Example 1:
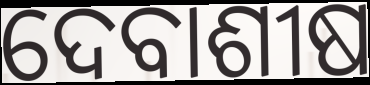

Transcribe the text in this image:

ଦେବାଶୀଷ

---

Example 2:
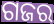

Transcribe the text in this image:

ଗଜର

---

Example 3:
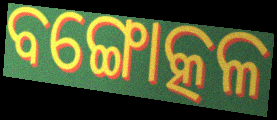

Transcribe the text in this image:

ବଙ୍ଗୋତ୍କଳ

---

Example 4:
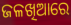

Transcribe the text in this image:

ଜଳଖିଆରେ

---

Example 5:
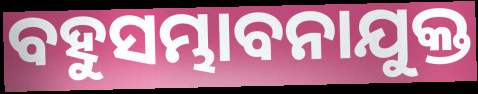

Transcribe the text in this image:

ବହୁସମ୍ଭାବନାଯୁକ୍ତ